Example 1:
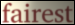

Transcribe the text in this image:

fairest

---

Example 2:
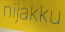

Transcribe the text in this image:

nijakku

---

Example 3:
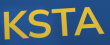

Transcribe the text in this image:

KSTA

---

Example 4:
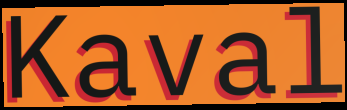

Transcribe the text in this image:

Kaval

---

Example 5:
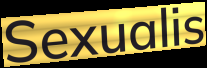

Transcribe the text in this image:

Sexualis